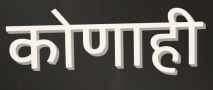
कोणाही